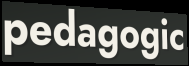
pedagogic